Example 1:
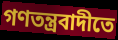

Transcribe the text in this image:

গণতন্ত্রবাদীতে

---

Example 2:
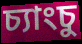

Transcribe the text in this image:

চ্যাংচু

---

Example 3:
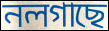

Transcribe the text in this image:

নলগাছে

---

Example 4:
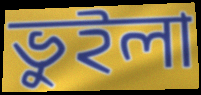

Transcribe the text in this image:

ভুইলা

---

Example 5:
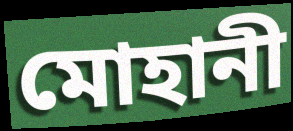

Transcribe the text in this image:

মোহানী